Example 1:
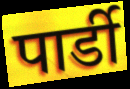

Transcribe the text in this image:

पार्डी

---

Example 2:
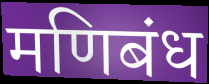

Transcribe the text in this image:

मणिबंध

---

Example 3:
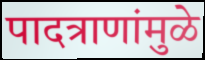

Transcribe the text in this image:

पादत्राणांमुळे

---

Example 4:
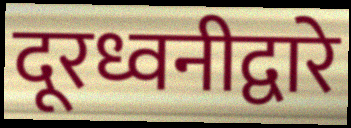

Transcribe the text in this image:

दूरध्वनीद्वारे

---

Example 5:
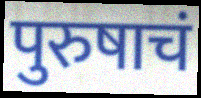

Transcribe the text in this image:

पुरुषाचं